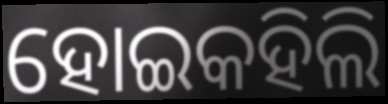
ହୋଇକହିଲି